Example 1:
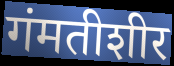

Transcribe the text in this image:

गंमतीशीर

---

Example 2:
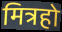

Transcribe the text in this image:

मित्रहो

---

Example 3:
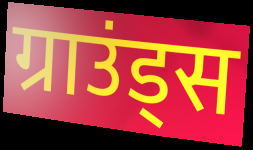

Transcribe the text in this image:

ग्राउंड्स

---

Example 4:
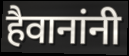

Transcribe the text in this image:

हैवानांनी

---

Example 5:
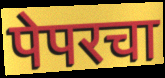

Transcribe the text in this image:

पेपरचा